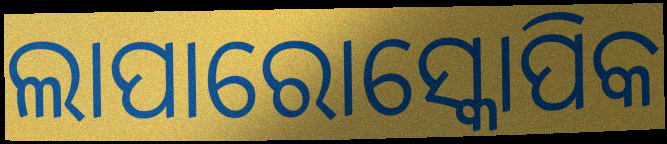
ଲାପାରୋସ୍କୋପିକ